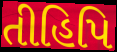
તીહિપિ